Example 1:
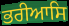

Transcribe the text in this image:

ਭਰੀਆਸਿ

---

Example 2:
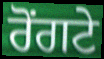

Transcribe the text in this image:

ਰੋੰਗਟੇ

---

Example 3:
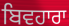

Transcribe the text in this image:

ਬਿਵਹਾਰਾ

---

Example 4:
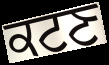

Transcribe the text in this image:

ਕਟਣ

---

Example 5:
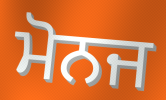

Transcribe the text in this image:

ਮੋਨਜ